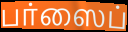
பர்ஸைப்